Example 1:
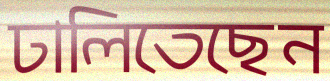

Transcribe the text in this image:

ঢালিতেছেন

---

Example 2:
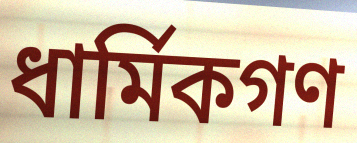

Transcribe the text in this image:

ধার্মিকগণ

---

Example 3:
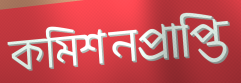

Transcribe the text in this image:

কমিশনপ্রাপ্তি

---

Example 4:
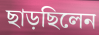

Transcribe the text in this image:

ছাড়ছিলেন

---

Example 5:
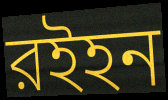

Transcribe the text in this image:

রইহন